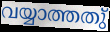
വയ്യാത്തതു്